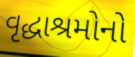
વૃદ્ધાશ્રમોનો